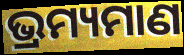
ଭ୍ରମ୍ୟମାଣ